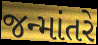
જન્માંતરે